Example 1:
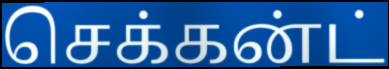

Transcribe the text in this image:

செக்கன்ட்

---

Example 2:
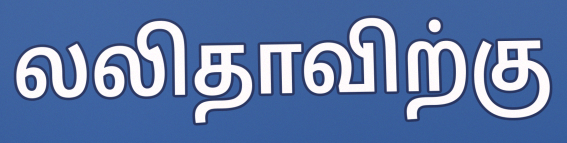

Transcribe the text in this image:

லலிதாவிற்கு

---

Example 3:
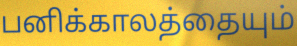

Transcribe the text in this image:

பனிக்காலத்தையும்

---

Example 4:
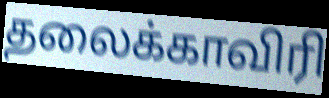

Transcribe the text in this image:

தலைக்காவிரி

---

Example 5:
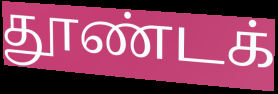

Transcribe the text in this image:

தூண்டக்